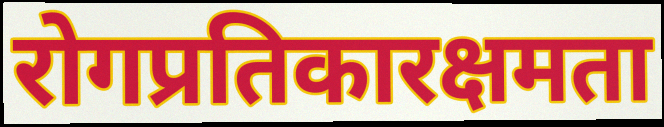
रोगप्रतिकारक्षमता